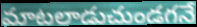
మాటలాడుచుండగనే